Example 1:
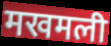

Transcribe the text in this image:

मखमली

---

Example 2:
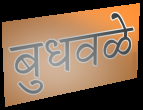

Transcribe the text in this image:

बुधवळे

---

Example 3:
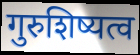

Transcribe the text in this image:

गुरुशिष्यत्व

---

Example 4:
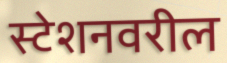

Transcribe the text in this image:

स्टेशनवरील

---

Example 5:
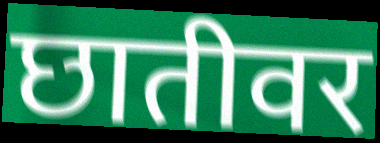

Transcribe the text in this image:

छातीवर